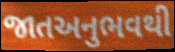
જાતઅનુભવથી